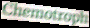
Chemotroph